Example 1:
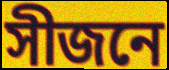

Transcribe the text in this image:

সীজনে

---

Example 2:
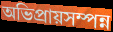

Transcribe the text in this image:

অভিপ্রায়সম্পন্ন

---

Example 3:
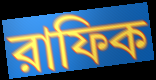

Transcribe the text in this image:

রাফিক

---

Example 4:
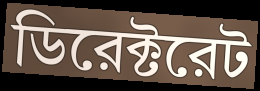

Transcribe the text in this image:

ডিরেক্টরেট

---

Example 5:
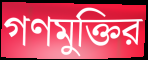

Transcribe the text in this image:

গণমুক্তির